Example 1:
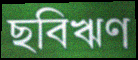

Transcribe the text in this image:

ছবিঋণ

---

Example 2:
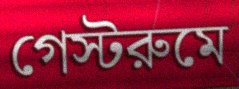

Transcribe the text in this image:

গেস্টরুমে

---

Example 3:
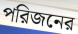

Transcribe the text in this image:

পরিজনের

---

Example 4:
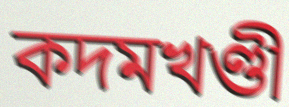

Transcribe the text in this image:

কদমখণ্ডী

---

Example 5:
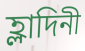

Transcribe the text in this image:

হ্লাদিনী